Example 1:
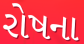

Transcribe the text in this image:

રોષના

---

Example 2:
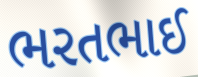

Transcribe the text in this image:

ભરતભાઈ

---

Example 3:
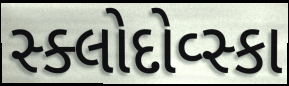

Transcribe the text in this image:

સ્ક્લોદોવ્સ્કા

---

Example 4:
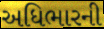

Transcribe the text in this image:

અધિભારની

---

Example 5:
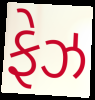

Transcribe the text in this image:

ફેઝ